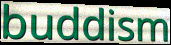
buddism